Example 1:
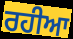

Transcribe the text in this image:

ਰਹੀਆ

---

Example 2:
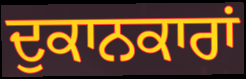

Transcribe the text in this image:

ਦੁਕਾਨਕਾਰਾਂ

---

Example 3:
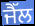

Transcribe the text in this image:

ਜੈੱਲ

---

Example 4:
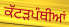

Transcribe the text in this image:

ਕੱਟੜਪੰਥੀਆਂ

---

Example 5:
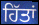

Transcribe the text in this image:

ਹਿੱਤਾਂ